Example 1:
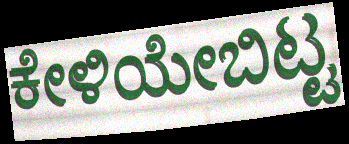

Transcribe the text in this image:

ಕೇಳಿಯೇಬಿಟ್ಟ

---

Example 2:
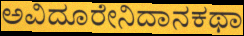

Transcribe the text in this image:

ಅವಿದೂರೇನಿದಾನಕಥಾ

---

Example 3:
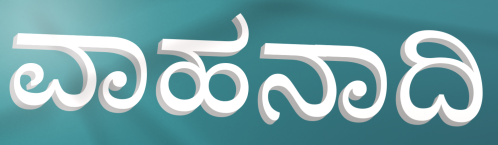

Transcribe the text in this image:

ವಾಹನಾದಿ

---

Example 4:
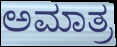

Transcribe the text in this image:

ಅಮಾತ್ರ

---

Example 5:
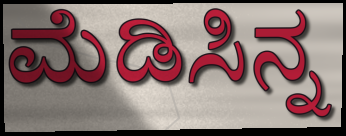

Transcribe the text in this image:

ಮೆಡಿಸಿನ್ನ